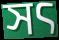
সৎ